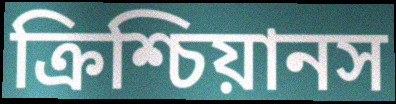
ক্রিশ্চিয়ানস